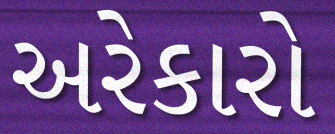
અરેકારો